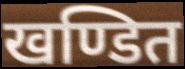
खण्डित